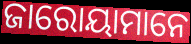
ଜାରୋୟାମାନେ